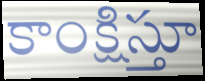
కాంక్షిస్తూ